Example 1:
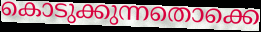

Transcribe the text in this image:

കൊടുക്കുന്നതൊക്കെ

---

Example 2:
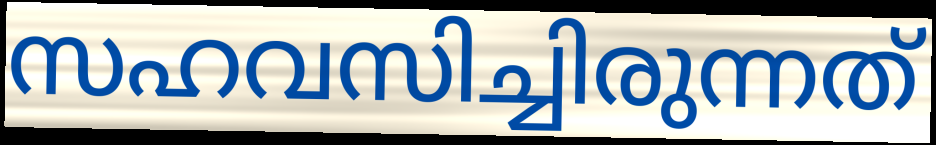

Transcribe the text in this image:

സഹവസിച്ചിരുന്നത്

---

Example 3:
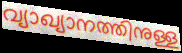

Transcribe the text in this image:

വ്യാഖ്യാനത്തിനുള്ള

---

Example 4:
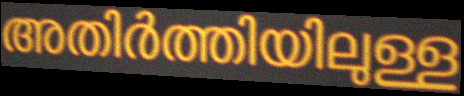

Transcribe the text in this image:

അതിർത്തിയിലുള്ള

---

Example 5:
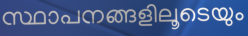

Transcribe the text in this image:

സ്ഥാപനങ്ങളിലൂടെയും